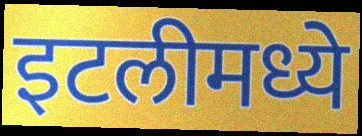
इटलीमध्ये